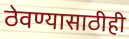
ठेवण्यासाठीही